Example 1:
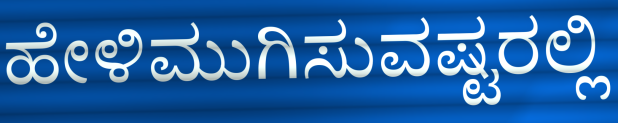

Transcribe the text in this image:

ಹೇಳಿಮುಗಿಸುವಷ್ಟರಲ್ಲಿ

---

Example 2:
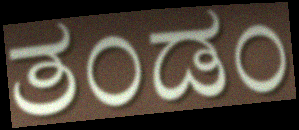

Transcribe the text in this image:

ತಂಡಂ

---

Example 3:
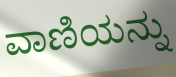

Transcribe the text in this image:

ವಾಣಿಯನ್ನು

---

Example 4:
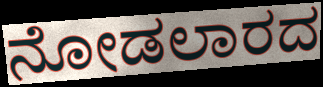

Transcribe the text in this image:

ನೋಡಲಾರದ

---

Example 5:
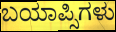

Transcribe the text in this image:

ಬಯಾಪ್ಸಿಗಳು